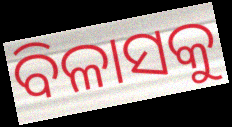
ବିଳାସକୁ